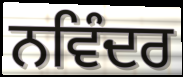
ਨਵਿੰਦਰ